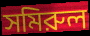
সমিরুল